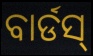
ବାର୍ଡସ୍